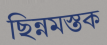
ছিন্নমস্তক